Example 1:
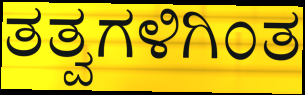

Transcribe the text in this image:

ತತ್ವಗಳಿಗಿಂತ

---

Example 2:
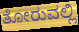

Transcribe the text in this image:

ತೋರುವಲ್ಲಿ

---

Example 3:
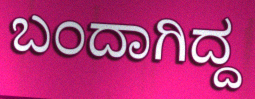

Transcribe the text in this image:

ಬಂದಾಗಿದ್ದ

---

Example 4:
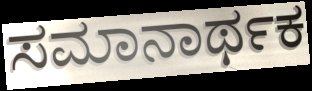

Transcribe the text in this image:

ಸಮಾನಾರ್ಥಕ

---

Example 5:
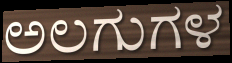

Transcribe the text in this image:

ಅಲಗುಗಳ